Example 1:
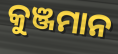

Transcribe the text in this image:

କୁଞ୍ଜମାନ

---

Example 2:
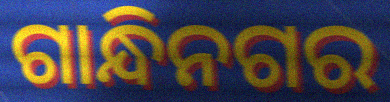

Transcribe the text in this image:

ଗାନ୍ଧିନଗର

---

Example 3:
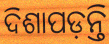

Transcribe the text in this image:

ଦିଶାପଡ଼ନ୍ତି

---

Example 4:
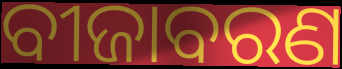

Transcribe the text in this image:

ବୀଜାବରଣ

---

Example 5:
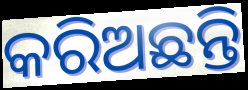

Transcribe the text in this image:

କରିଅଛନ୍ତି